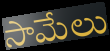
సామేలు